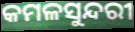
କମଳସୁନ୍ଦରୀ